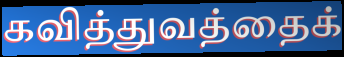
கவித்துவத்தைக்